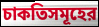
চাকতিসমূহের